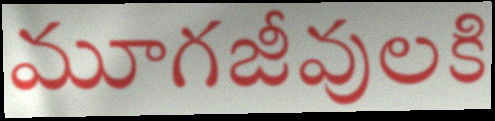
మూగజీవులకి